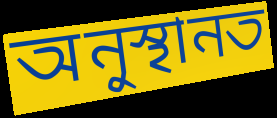
অনুস্থানত